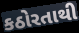
કઠોરતાથી